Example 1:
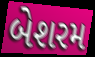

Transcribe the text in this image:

બેશરમ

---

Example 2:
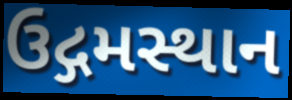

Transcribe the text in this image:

ઉદ્ગમસ્થાન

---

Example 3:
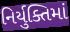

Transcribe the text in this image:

નિર્યુક્તિમાં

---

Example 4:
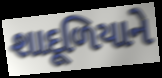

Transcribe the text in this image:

શાદૂળિયાને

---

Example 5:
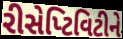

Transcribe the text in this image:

રીસેપ્ટિવિટીને